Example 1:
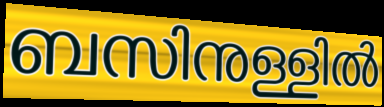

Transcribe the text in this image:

ബസിനുള്ളിൽ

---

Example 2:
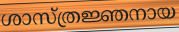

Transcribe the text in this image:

ശാസ്ത്രജ്ഞനായ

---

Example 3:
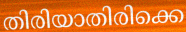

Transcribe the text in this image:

തിരിയാതിരിക്കെ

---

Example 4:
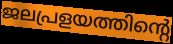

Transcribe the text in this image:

ജലപ്രളയത്തിന്റെ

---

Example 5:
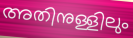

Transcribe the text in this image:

അതിനുള്ളിലും